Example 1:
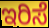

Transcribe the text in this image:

ಇರಿಸೆ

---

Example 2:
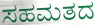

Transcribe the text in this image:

ಸಹಮತದ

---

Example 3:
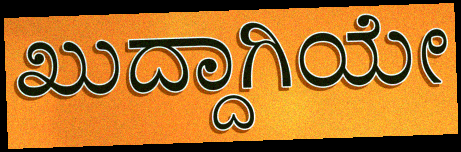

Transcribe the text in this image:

ಖುದ್ದಾಗಿಯೇ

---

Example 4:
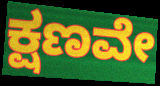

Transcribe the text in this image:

ಕ್ಷಣವೇ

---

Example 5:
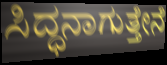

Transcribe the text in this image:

ಸಿದ್ಧನಾಗುತ್ತೇನೆ